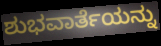
ಶುಭವಾರ್ತೆಯನ್ನು